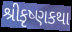
શ્રીકૃષ્ણકથા